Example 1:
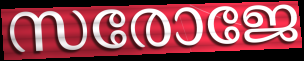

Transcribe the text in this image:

സരോജേ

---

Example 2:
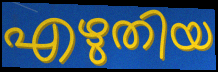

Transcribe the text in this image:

എഴുതിയ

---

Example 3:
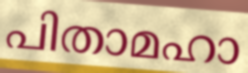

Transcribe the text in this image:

പിതാമഹാ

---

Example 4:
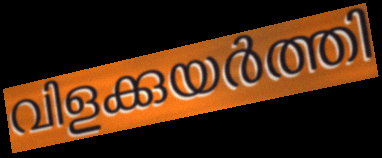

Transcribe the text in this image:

വിളക്കുയർത്തി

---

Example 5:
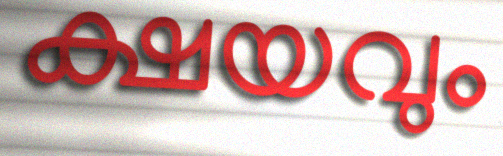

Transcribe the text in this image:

ക്ഷയവും